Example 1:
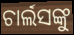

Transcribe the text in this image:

ଚାର୍ଲସଙ୍କୁ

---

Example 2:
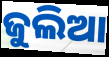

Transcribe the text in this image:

ଜୁଲିଆ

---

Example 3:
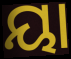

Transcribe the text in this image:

ୟା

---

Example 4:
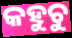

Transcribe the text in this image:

କହୁଚୁ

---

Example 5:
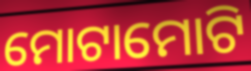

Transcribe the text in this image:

ମୋଟାମୋଟି